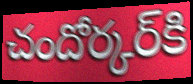
చందోర్కర్‌కి